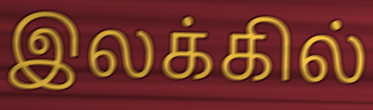
இலக்கில்